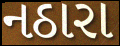
નઠારા